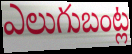
ఎలుగుబంట్ల